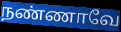
நண்ணாவே